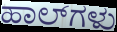
ಹಾಲ್‌ಗಳು